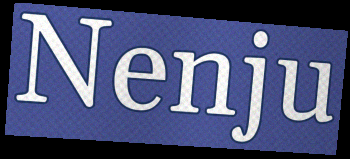
Nenju